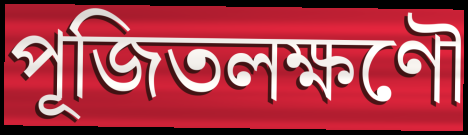
পূজিতলক্ষণৌ